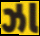
ઝા